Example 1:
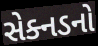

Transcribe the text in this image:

સેક્નડનો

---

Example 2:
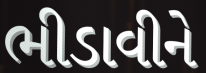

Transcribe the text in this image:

ભીડાવીને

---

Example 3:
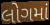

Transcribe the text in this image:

લોગમાં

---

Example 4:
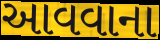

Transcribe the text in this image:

આવવાના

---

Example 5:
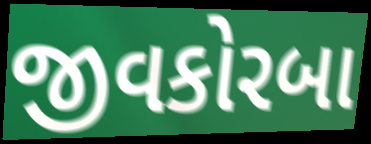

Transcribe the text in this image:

જીવકોરબા